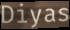
Diyas